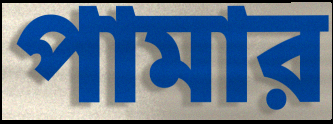
পামার